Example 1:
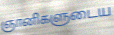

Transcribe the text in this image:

ஞானிகளுடைய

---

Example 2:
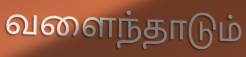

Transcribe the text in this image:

வளைந்தாடும்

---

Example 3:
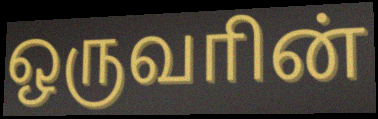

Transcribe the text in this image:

ஒருவரின்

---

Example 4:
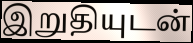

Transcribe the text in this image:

இறுதியுடன்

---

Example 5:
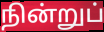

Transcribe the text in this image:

நின்றுப்